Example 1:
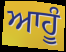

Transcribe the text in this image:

ਆਹੂੰ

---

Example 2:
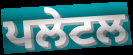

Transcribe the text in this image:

ਪਲੇਟਲ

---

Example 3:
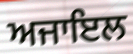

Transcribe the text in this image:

ਅਜਾਇਲ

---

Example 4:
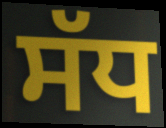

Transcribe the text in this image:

ਸੱਧ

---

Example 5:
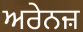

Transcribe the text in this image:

ਅਰੇਨਜ਼